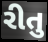
રીતુ